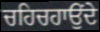
ਚਹਿਚਹਾਉਂਦੇ